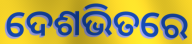
ଦେଶଭିତରେ